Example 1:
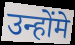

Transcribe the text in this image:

उन्होंमे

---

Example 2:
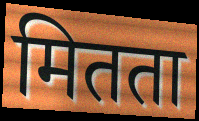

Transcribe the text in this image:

मितता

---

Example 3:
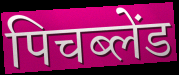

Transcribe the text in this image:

पिचब्लेंड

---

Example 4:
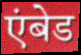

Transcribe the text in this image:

एंबेड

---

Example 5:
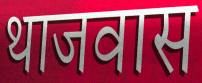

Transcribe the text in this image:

थाजवास